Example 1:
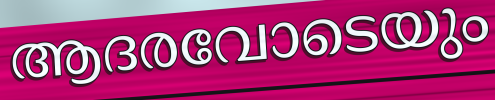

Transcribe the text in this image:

ആദരവോടെയും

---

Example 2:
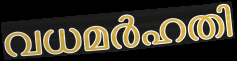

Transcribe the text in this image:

വധമർഹതി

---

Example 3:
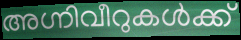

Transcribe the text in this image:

അഗ്നിവീറുകൾക്ക്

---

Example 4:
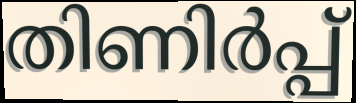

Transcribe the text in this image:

തിണിർപ്പ്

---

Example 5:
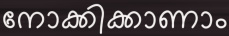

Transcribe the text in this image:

നോക്കിക്കാണാം